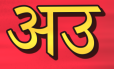
अउ